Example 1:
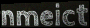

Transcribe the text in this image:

nmeict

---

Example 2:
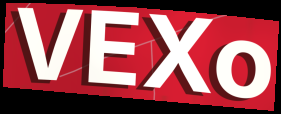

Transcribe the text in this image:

VEXo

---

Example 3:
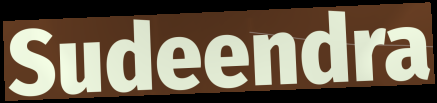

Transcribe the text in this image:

Sudeendra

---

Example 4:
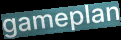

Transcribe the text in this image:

gameplan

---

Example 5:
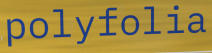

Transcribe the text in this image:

polyfolia